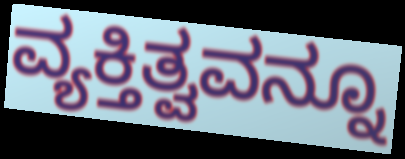
ವ್ಯಕ್ತಿತ್ವವನ್ನೂ